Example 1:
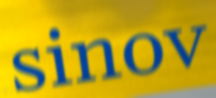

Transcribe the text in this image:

sinov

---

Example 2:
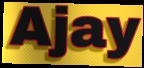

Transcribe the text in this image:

Ajay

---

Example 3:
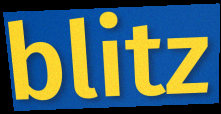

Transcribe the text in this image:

blitz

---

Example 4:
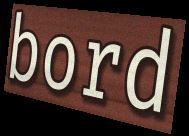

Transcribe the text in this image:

bord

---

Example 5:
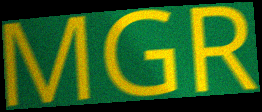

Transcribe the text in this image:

MGR